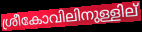
ശ്രീകോവിലിനുള്ളില്